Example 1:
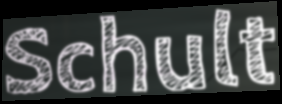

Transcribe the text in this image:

Schult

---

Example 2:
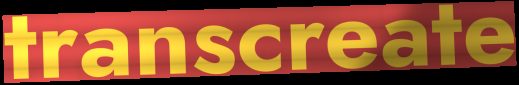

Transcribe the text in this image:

transcreate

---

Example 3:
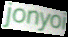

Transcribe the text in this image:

jonyoi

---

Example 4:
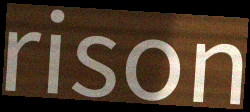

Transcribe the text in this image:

rison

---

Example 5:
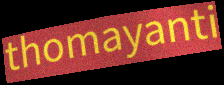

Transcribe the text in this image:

thomayanti